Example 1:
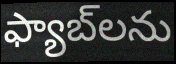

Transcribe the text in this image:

ఫ్యాబ్‌లను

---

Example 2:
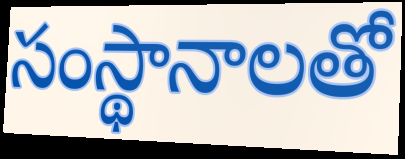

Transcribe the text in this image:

సంస్థానాలతో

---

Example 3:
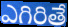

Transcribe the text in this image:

ఎగిరితే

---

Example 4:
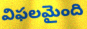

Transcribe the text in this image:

విఫలమైంది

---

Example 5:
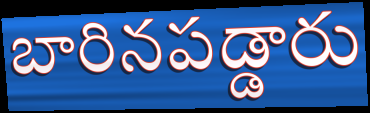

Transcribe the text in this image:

బారినపడ్డారు